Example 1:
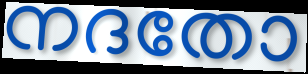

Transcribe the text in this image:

നദതോ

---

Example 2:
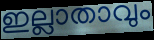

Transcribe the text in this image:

ഇല്ലാതാവും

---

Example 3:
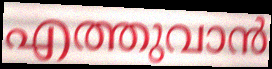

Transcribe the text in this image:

എത്തുവാൻ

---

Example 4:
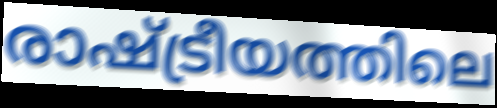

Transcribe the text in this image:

രാഷ്ട്രീയത്തിലെ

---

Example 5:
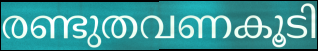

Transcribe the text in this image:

രണ്ടുതവണകൂടി